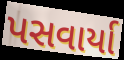
પસવાર્યા